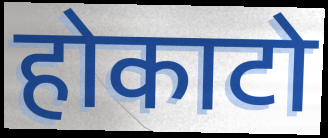
होकाटो